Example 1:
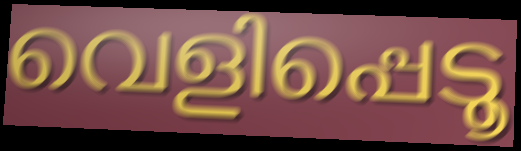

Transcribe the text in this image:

വെളിപ്പെടൂ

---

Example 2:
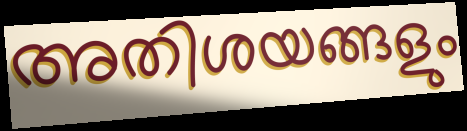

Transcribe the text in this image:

അതിശയങ്ങളും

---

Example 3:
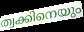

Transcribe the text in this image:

ത്വക്കിനെയും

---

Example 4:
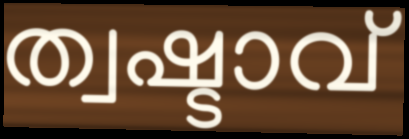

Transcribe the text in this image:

ത്വഷ്ടാവ്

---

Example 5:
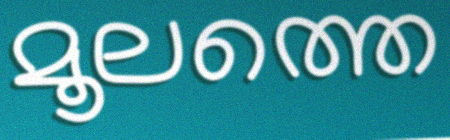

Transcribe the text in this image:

മൂലത്തെ